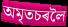
অমৃতচৰলৈ